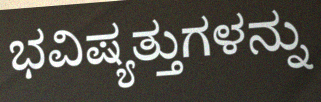
ಭವಿಷ್ಯತ್ತುಗಳನ್ನು